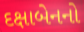
દક્ષાબેનનો